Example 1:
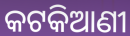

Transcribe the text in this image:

କଟକିଆଣୀ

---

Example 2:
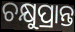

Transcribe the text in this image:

ଚକ୍ଷୁପ୍ରାନ୍ତ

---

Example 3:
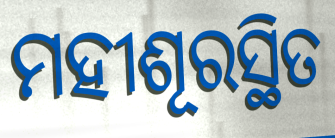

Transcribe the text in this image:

ମହୀଶୂରସ୍ଥିତ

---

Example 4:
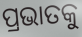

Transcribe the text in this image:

ପ୍ରଭାତକୁ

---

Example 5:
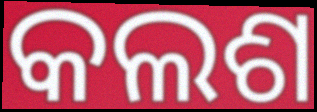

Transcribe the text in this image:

କଲଶ